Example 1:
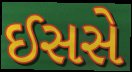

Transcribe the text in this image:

ઈસસે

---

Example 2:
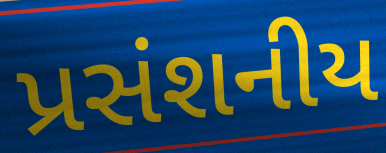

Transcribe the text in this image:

પ્રસંશનીય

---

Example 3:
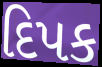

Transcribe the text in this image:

દિપક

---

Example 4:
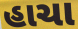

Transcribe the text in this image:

હાચા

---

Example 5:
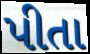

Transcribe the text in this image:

પીતા